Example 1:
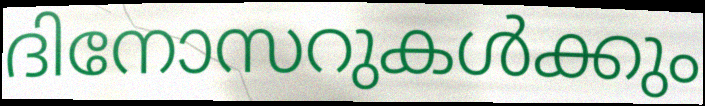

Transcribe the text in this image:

ദിനോസറുകൾക്കും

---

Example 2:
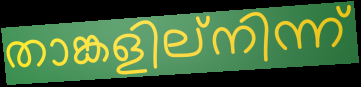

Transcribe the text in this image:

താങ്കളില്നിന്ന്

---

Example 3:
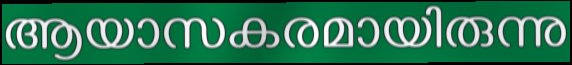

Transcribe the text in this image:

ആയാസകരമായിരുന്നു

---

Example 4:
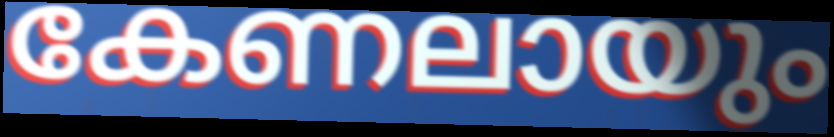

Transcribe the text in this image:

കേണലായും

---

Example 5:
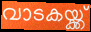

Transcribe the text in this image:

വാടകയ്ക്ക്